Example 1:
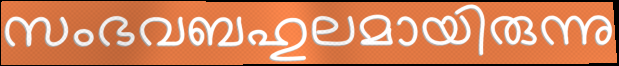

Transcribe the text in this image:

സംഭവബഹുലമായിരുന്നു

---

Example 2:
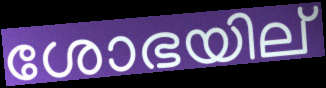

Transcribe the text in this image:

ശോഭയില്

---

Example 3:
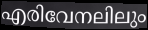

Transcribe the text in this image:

എരിവേനലിലും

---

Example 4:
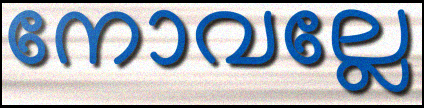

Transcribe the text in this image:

നോവല്ലേ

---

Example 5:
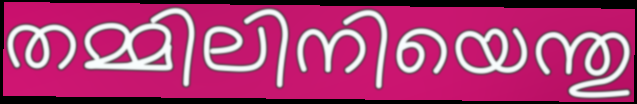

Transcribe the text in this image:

തമ്മിലിനിയെന്തു